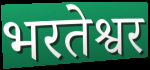
भरतेश्वर